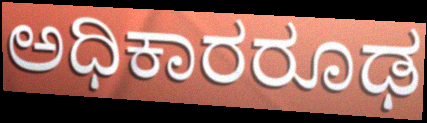
ಅಧಿಕಾರರೂಢ